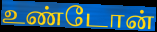
உண்டோன்